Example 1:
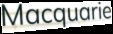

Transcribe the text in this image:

Macquarie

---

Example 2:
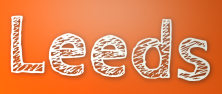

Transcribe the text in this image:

Leeds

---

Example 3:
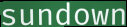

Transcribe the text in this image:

sundown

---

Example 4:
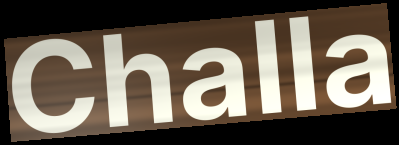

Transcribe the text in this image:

Challa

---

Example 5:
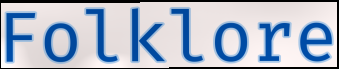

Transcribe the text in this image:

Folklore